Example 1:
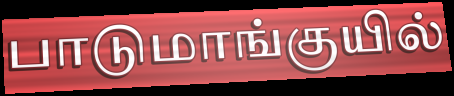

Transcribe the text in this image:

பாடுமாங்குயில்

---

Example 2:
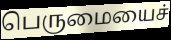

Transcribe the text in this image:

பெருமையைச்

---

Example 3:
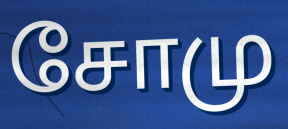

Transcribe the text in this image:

சோமு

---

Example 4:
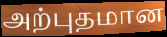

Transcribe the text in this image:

அற்புதமான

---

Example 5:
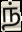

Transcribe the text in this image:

ந்